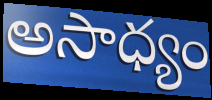
అసాధ్యం